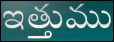
ఇత్తుము